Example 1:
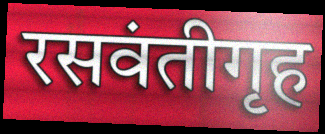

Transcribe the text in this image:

रसवंतीगृह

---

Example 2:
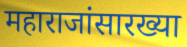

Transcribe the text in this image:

महाराजांसारख्या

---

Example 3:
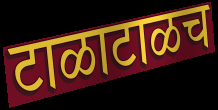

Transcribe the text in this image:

टाळाटाळच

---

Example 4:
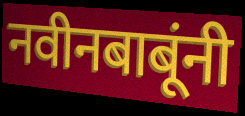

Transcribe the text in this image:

नवीनबाबूंनी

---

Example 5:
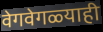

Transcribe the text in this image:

वेगवेगळ्याही